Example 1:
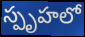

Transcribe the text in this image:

స్పృహలో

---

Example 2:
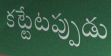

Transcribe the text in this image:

కట్టేటప్పుడు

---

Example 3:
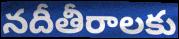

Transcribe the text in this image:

నదీతీరాలకు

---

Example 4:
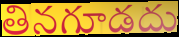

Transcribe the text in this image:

తినగూడదు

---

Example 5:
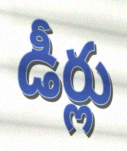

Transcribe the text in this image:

డీర్లు